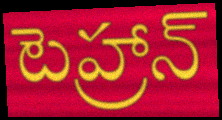
టెహ్రాన్